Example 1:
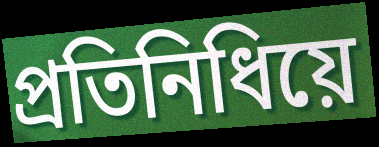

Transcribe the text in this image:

প্ৰতিনিধিয়ে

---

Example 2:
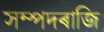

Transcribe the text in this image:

সম্পদৰাজি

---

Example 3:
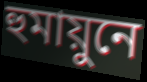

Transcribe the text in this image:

হুমায়ুনে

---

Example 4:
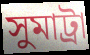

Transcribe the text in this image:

সুমাট্ৰা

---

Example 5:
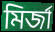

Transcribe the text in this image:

মিৰ্জা